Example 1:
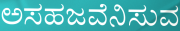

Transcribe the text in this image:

ಅಸಹಜವೆನಿಸುವ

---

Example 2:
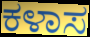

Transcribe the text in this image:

ಕಳಾಸ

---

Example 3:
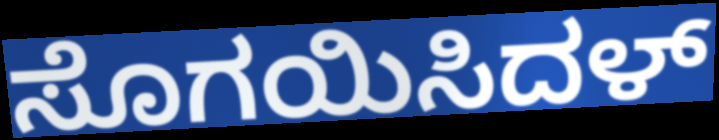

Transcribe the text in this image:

ಸೊಗಯಿಸಿದಳ್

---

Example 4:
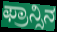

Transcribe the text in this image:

ಫ್ರಾನ್ಸಿನ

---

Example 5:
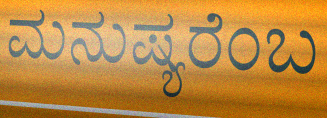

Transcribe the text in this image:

ಮನುಷ್ಯರೆಂಬ